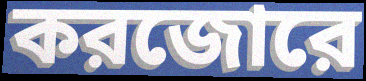
করজোরে